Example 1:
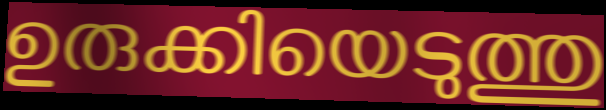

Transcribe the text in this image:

ഉരുക്കിയെടുത്തു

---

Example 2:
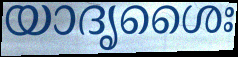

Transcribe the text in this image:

യാദൃശൈഃ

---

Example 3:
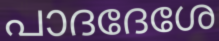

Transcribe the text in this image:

പാദദേശേ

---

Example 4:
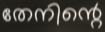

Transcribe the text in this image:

തേനിന്റെ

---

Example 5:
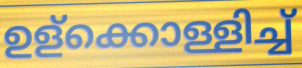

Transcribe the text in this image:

ഉള്ക്കൊള്ളിച്ച്